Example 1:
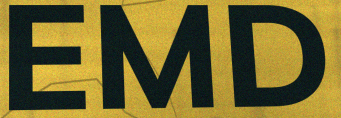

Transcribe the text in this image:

EMD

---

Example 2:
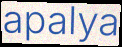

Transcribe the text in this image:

apalya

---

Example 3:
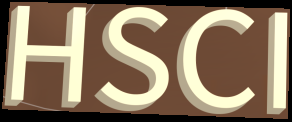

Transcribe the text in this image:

HSCI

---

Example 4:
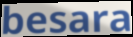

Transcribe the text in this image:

besara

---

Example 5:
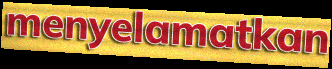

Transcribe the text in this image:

menyelamatkan